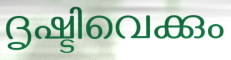
ദൃഷ്ടിവെക്കും